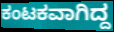
ಕಂಟಕವಾಗಿದ್ದ